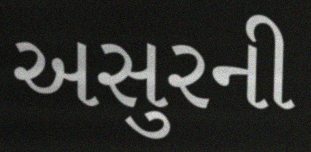
અસુરની